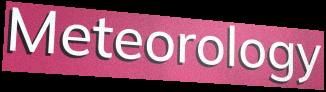
Meteorology